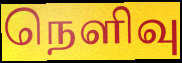
நெளிவு